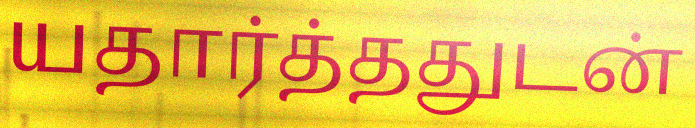
யதார்த்ததுடன்